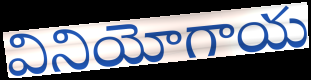
వినియోగాయ